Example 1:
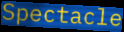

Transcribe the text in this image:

Spectacle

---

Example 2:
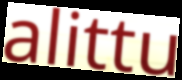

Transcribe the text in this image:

alittu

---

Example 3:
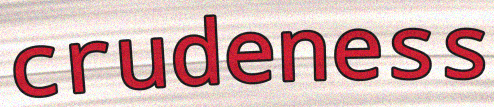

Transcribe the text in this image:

crudeness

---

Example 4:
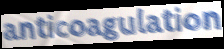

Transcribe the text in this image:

anticoagulation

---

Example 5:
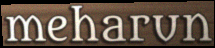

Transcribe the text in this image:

meharun